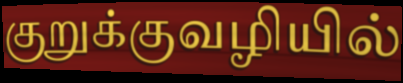
குறுக்குவழியில்